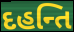
દહન્તિ